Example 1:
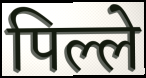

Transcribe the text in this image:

पिल्ले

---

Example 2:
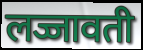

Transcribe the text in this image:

लज्जावती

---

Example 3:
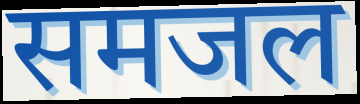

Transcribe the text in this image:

समजल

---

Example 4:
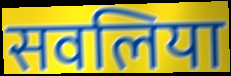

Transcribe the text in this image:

सवलिया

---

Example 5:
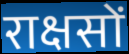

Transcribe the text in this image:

राक्षसों